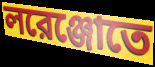
লরেঞ্জোতে